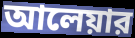
আলেয়ার